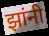
झांनी